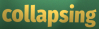
collapsing